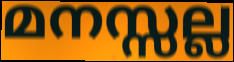
മനസ്സല്ല